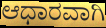
ಆಧಾರವಾಗಿ